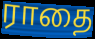
ராதை